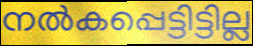
നൽകപ്പെട്ടിട്ടില്ല